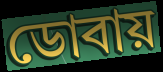
ডোবায়